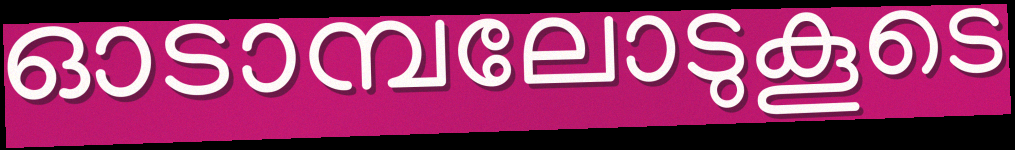
ഓടാമ്പലോടുകൂടെ